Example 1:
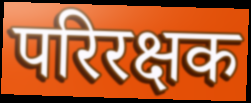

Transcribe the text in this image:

परिरक्षक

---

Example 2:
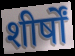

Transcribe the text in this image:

शीर्षों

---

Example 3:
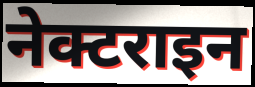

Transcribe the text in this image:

नेक्टराइन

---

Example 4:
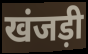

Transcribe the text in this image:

खंजड़ी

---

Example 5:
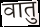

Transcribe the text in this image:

वातु